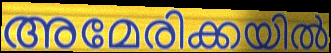
അമേരിക്കയിൽ